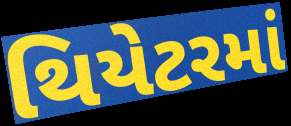
થિયેટરમાં